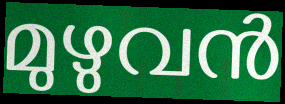
മുഴുവൻ